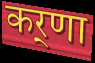
कर्णा